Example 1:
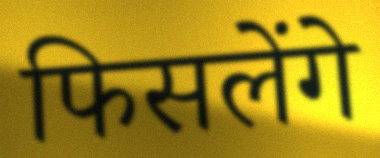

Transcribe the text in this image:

फिसलेंगे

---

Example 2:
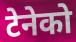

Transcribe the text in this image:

टेनेको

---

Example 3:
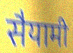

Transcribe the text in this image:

सैयामी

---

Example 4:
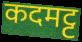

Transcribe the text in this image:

कदमट्ट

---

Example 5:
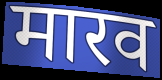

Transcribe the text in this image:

मारव